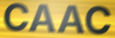
CAAC